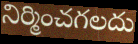
నిర్మించగలదు